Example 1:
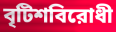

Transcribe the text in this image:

বৃটিশবিরোধী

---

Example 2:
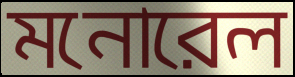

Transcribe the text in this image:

মনোরেল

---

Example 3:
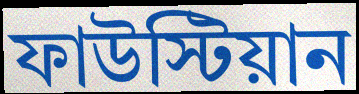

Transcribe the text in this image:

ফাউস্টিয়ান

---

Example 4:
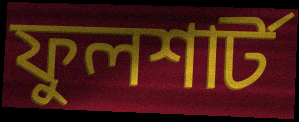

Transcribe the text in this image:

ফুলশার্ট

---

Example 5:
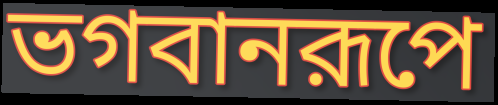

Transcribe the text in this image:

ভগবানরূপে